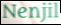
Nenjil